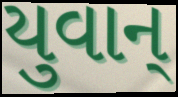
યુવાન્